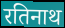
रतिनाथ